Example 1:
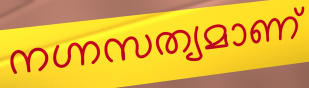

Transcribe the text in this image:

നഗ്നസത്യമാണ്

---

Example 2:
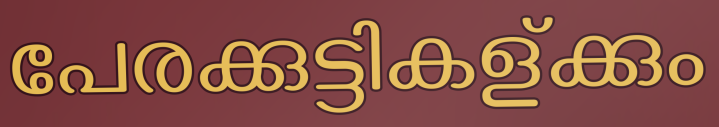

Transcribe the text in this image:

പേരക്കുട്ടികള്ക്കും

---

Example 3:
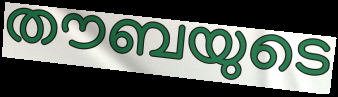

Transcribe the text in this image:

തൗബയുടെ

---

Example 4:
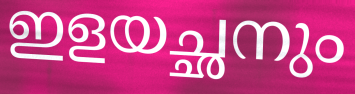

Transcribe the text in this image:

ഇളയച്ഛനും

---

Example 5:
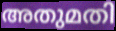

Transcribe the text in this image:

അതുമതി